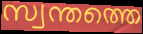
സ്വന്തത്തെ